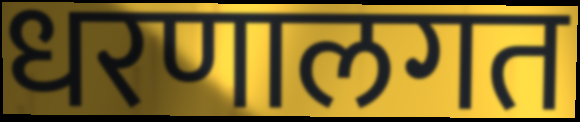
धरणालगत